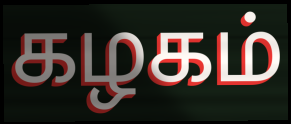
கழகம்